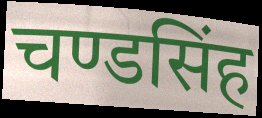
चण्डसिंह